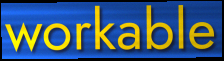
workable